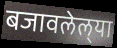
बजावलेल्या